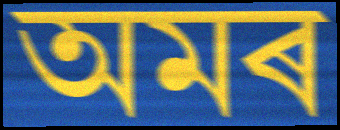
অমৰ